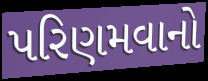
પરિણમવાનો